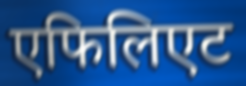
एफिलिएट